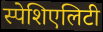
स्पेशिएलिटी